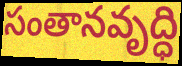
సంతానవృద్ధి